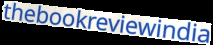
thebookreviewindia